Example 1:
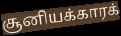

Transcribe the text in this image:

சூனியக்காரக்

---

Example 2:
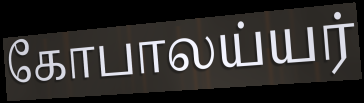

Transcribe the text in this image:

கோபாலய்யர்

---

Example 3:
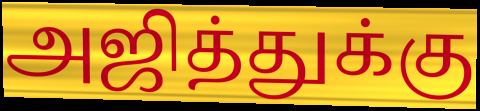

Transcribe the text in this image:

அஜித்துக்கு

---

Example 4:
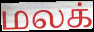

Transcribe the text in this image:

மலக்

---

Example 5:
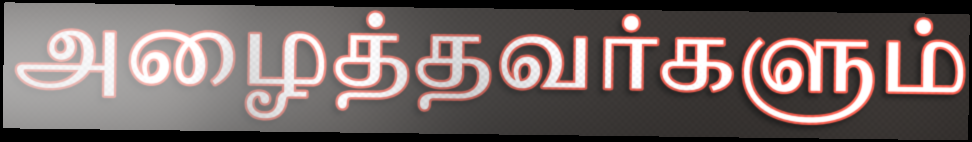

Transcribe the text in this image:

அழைத்தவர்களும்